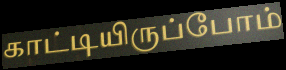
காட்டியிருப்போம்